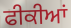
ਫੀਕੀਆਂ